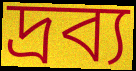
দ্ৰব্য